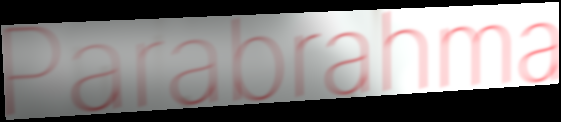
Parabrahma